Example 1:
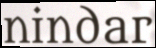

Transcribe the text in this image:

nindar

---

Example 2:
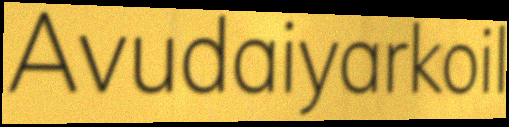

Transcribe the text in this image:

Avudaiyarkoil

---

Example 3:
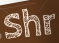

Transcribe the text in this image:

Shr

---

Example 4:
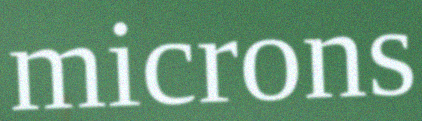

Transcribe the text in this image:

microns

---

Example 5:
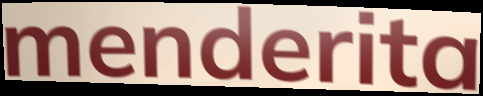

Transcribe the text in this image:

menderita